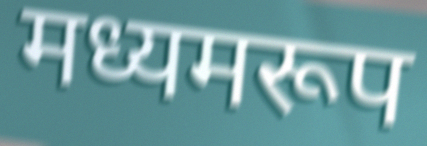
मध्यमरूप